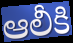
ఆలీకి